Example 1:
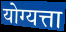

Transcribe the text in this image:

योग्यत्ता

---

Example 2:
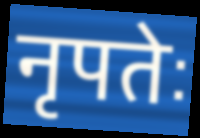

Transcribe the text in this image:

नृपतेः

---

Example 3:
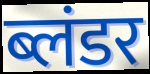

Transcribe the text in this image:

ब्लंडर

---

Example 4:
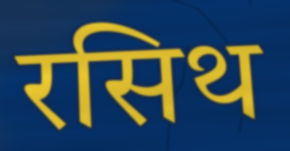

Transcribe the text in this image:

रसिथ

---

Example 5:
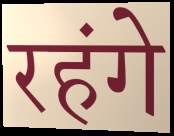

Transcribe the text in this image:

रहंगे